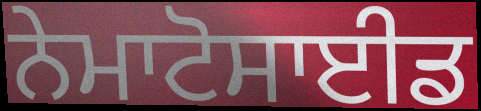
ਨੇਮਾਟੋਸਾਈਡ